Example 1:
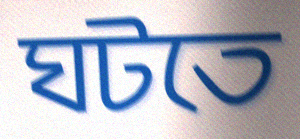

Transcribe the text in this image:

ঘটতে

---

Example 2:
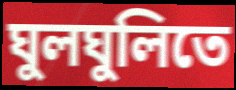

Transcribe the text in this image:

ঘুলঘুলিতে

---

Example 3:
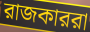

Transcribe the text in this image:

রাজকাররা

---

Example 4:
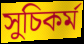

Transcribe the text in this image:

সুচিকর্ম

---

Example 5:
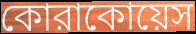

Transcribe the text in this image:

কোরাকোয়েস